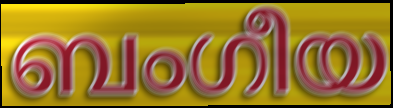
ബംഗീയ